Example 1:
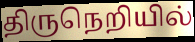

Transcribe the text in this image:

திருநெறியில்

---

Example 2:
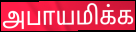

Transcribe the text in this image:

அபாயமிக்க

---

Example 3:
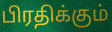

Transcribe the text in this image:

பிரதிக்கும்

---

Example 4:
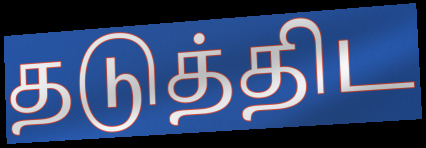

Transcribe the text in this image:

தடுத்திட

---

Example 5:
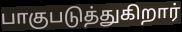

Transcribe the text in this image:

பாகுபடுத்துகிறார்